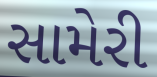
સામેરી